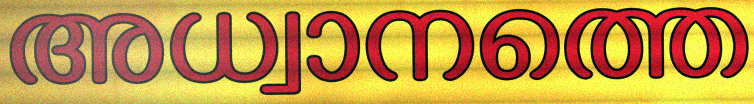
അധ്വാനത്തെ